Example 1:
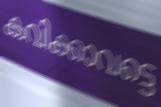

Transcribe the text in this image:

കവിക്കാവട്ടെ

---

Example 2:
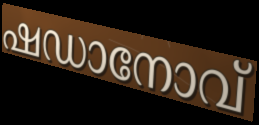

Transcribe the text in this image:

ഷഡാനോവ്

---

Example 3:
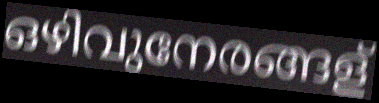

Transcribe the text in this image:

ഒഴിവുനേരങ്ങള്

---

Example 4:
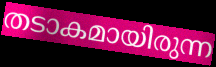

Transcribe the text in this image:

തടാകമായിരുന്ന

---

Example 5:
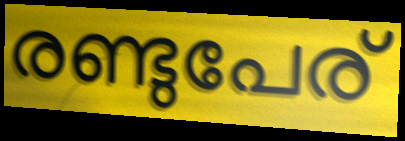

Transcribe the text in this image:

രണ്ടുപേര്